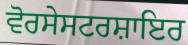
ਵੋਰਸੇਸਟਰਸ਼ਾਇਰ